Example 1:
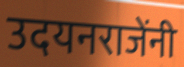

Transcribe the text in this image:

उदयनराजेंनी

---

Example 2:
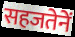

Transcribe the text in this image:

सहजतेनें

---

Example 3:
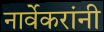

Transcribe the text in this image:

नार्वेकरांनी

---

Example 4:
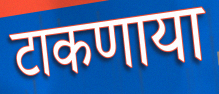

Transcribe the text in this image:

टाकणाया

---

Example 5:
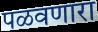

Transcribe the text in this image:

पळवणारा